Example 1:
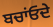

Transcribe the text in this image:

ਬਚਾਂਓਦੇ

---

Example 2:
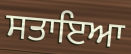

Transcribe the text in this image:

ਸਤਾਇਆ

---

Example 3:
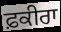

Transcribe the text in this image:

ਫ਼ਕੀਰਾ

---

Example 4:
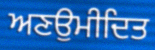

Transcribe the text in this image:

ਅਣਉਮੀਦਿਤ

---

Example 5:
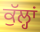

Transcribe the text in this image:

ਕੁੱਲ੍ਹਾਂ